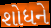
શોધને